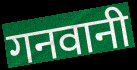
गनवानी